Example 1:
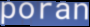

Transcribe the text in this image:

poran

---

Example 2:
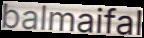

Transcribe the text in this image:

balmaifal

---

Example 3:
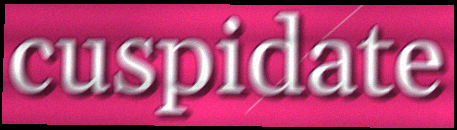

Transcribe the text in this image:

cuspidate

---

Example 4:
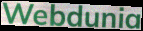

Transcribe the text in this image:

Webdunia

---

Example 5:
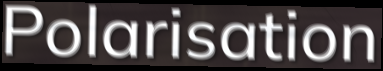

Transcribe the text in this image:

Polarisation